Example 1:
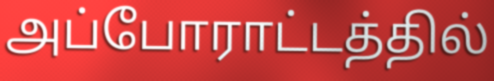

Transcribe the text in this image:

அப்போராட்டத்தில்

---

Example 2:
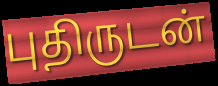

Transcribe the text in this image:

புதிருடன்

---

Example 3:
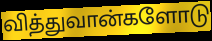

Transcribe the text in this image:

வித்துவான்களோடு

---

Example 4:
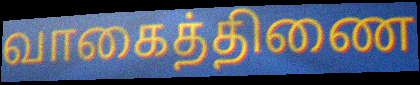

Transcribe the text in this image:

வாகைத்திணை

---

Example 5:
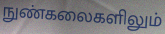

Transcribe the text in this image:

நுண்கலைகளிலும்